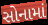
સોનામાં